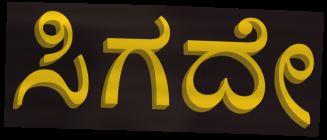
ಸಿಗದೇ